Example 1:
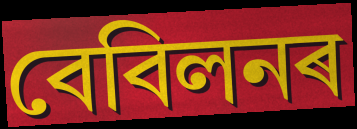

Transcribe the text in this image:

বেবিলনৰ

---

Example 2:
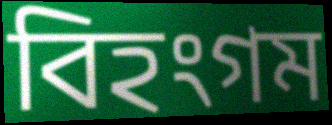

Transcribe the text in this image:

বিহংগম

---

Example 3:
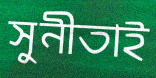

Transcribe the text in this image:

সুনীতাই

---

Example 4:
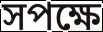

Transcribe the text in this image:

সপক্ষে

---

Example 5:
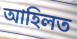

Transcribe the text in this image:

আহিলত